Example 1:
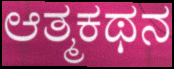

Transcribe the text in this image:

ಆತ್ಮಕಥನ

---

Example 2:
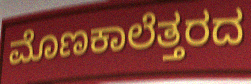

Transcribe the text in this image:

ಮೊಣಕಾಲೆತ್ತರದ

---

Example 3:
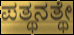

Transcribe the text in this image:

ಪತ್ಥನತ್ಥೇ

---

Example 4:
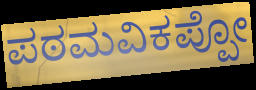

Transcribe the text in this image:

ಪಠಮವಿಕಪ್ಪೋ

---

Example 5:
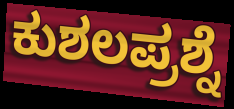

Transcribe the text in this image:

ಕುಶಲಪ್ರಶ್ನೆ